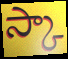
స్కా